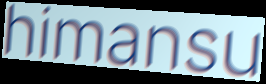
himansu